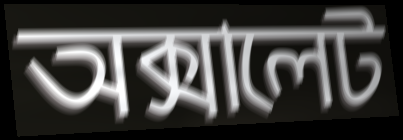
অক্সালেট